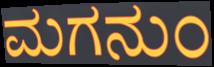
ಮಗನುಂ